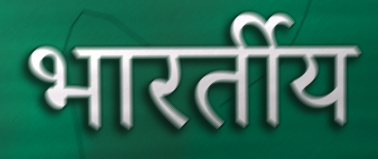
भारर्तीय